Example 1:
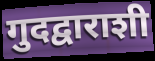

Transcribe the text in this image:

गुदद्वाराशी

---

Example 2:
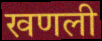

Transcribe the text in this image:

खणली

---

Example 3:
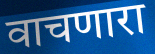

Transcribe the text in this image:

वाचणारा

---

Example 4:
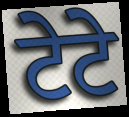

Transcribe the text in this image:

टेटे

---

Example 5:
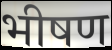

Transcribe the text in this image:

भीषण